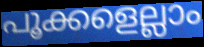
പൂക്കളെല്ലാം